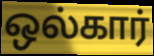
ஒல்கார்